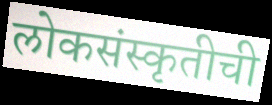
लोकसंस्कृतीची